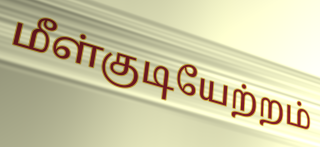
மீள்குடியேற்றம்